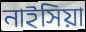
নাইসিয়া